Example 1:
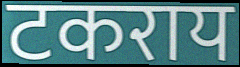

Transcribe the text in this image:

टकराय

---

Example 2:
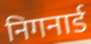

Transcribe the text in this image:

निगनार्ड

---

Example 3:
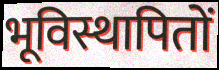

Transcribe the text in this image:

भूविस्थापितों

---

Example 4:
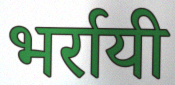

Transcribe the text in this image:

भर्रायी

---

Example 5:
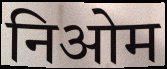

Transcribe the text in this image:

निओम